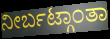
ನೀರ್ಬಟ್ಗಾಂತಾ